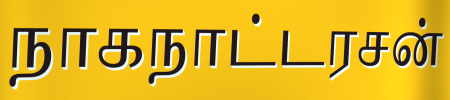
நாகநாட்டரசன்